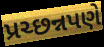
પ્રચ્છન્નપણે